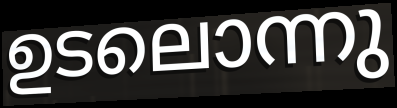
ഉടലൊന്നു